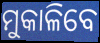
ମୁକାଳିବେ